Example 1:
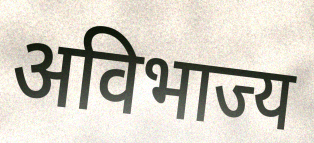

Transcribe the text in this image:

अविभाज्य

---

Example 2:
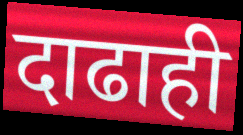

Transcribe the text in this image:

दाढाही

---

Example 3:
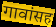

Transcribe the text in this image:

गावांसह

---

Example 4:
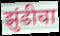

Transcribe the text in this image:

झुंडीचा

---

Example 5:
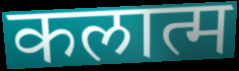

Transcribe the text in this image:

कलात्म